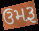
ઉમરૂ